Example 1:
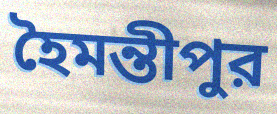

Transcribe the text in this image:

হৈমন্তীপুর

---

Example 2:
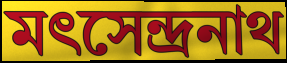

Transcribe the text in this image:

মৎসেন্দ্রনাথ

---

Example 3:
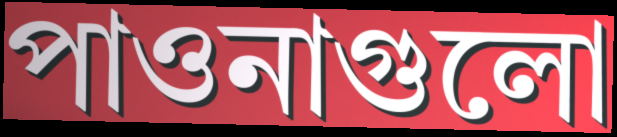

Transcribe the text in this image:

পাওনাগুলো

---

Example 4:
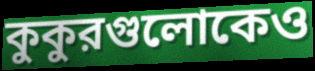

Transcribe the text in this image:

কুকুরগুলোকেও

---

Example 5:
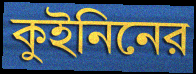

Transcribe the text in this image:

কুইনিনের